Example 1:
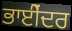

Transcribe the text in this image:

ਭਾਈੇਂਦਰ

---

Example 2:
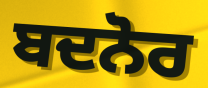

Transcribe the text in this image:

ਬਦਨੋਰ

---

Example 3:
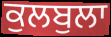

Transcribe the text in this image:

ਕੁਲਬੁਲਾ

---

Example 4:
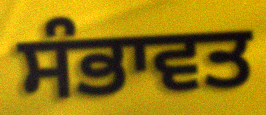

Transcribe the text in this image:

ਸੰਭਾਵਤ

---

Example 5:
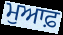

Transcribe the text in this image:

ਮੁਆਫ਼